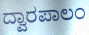
ದ್ವಾರಪಾಲಂ